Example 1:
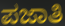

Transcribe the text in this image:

ಪಜಾತಿ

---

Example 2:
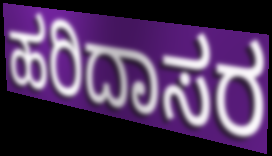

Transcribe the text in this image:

ಹರಿದಾಸರ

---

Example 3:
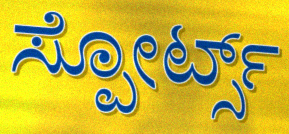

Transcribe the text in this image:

ಸ್ಪೋರ್ಟ್ಸ್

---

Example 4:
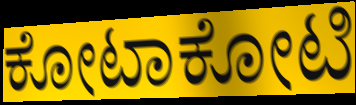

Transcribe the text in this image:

ಕೋಟಾಕೋಟಿ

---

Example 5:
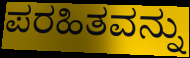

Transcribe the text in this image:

ಪರಹಿತವನ್ನು